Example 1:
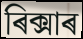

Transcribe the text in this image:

ৰিক্সাৰ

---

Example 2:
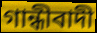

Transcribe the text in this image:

গান্ধীবাদী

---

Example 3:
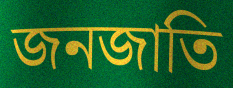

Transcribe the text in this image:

জনজাতি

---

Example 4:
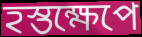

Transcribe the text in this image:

হস্তক্ষেপে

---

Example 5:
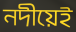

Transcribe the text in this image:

নদীয়েই